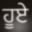
ਹੂਏ